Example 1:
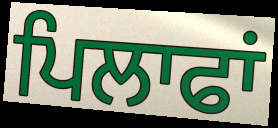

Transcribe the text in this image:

ਪਿਲਾਫਾਂ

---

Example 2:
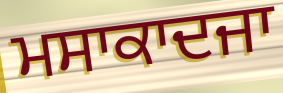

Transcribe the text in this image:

ਮਸਾਕਾਦਜਾ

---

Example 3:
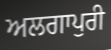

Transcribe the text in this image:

ਅਲਗਾਪੁਰੀ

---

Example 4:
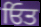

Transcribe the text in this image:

ਓਿਤ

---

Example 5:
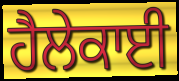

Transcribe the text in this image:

ਹੈਲੇਕਾਈ